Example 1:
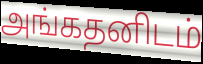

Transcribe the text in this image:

அங்கதனிடம்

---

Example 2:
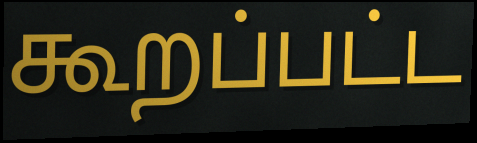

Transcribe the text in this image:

கூறப்பட்ட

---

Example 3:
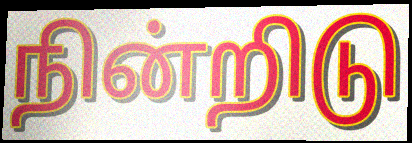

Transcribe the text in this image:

நின்றிடு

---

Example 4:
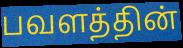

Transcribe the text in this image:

பவளத்தின்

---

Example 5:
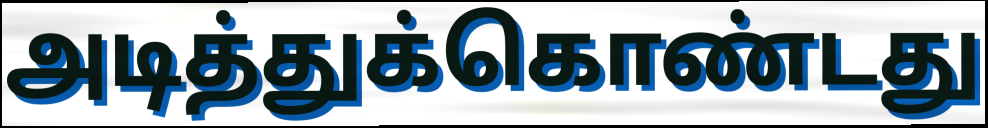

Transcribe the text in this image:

அடித்துக்கொண்டது